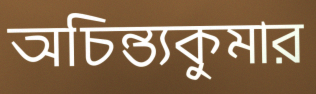
অচিন্ত্যকুমার